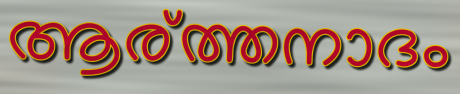
ആര്ത്തനാദം